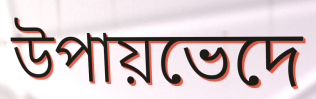
উপায়ভেদে